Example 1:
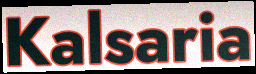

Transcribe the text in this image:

Kalsaria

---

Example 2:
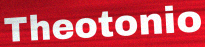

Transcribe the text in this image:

Theotonio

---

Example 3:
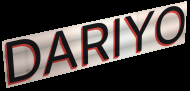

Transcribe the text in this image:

DARIYO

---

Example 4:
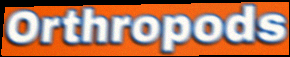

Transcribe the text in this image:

Orthropods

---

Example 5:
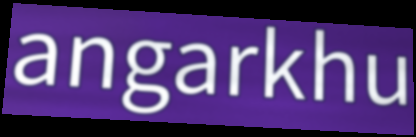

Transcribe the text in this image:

angarkhu